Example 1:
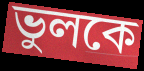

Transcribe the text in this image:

ভুলকে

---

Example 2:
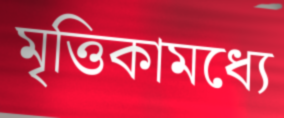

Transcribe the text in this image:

মৃত্তিকামধ্যে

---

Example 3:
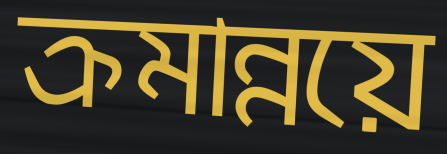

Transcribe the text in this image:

ক্রমান্নয়ে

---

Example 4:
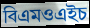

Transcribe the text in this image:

বিএমওএইচ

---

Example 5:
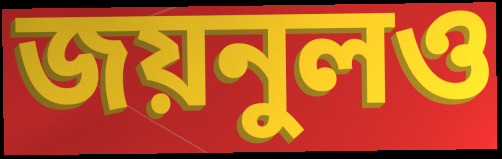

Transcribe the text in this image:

জয়নুলও